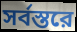
সর্বস্তরে